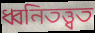
ধ্বনিতত্ত্বত